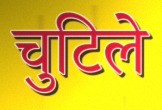
चुटिले